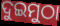
ଦୁଇମୁଠା